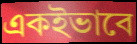
একইভাবে